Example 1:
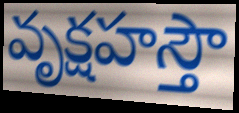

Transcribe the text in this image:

వృక్షహస్తౌ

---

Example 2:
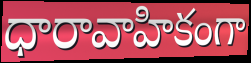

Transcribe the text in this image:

ధారావాహికంగా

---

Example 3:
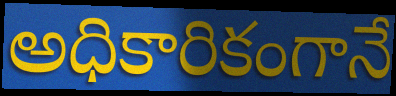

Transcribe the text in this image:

అధికారికంగానే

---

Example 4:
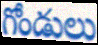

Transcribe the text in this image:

గోండులు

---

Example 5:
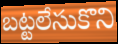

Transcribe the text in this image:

బట్టలేసుకొని